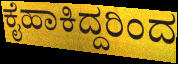
ಕೈಹಾಕಿದ್ದರಿಂದ